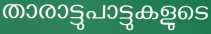
താരാട്ടുപാട്ടുകളുടെ